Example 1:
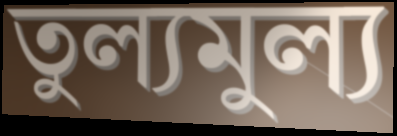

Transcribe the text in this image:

তুল্যমুল্য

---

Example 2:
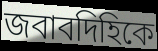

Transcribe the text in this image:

জবাবদিহিকে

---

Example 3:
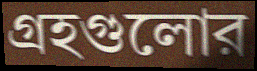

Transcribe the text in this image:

গ্রহগুলোর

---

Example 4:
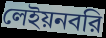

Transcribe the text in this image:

লেইয়নবরি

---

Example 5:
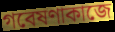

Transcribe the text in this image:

গবেষণাকাজে